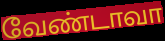
வேண்டாவா